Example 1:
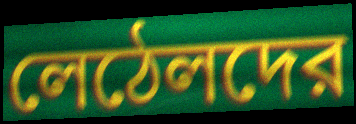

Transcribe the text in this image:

লেঠেলদের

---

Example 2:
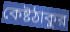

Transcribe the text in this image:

কেষ্টঠাকুর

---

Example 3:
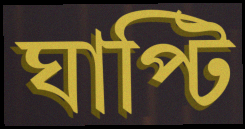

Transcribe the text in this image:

ঘাপ্টি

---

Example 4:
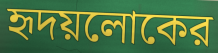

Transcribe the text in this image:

হৃদয়লোকের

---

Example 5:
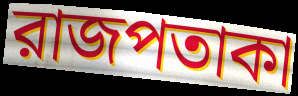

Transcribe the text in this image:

রাজপতাকা